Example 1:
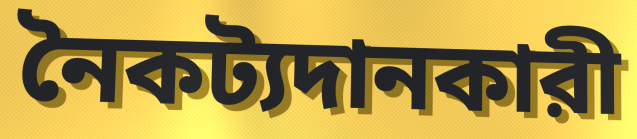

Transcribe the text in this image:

নৈকট্যদানকারী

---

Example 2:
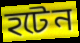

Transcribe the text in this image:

হটেন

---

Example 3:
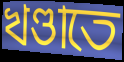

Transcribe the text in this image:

খণ্ডাতে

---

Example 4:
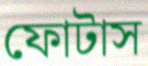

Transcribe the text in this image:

ফোটাস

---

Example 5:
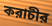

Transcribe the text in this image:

করাচীর